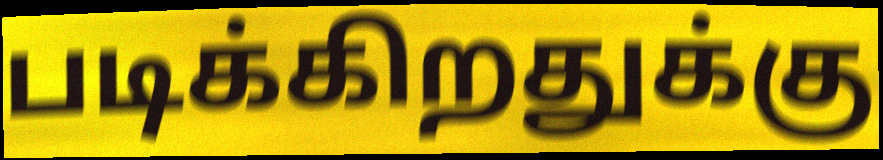
படிக்கிறதுக்கு